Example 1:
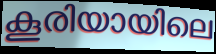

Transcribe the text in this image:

കൂരിയായിലെ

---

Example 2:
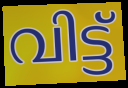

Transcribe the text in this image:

വിട്ട്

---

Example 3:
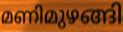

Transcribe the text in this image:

മണിമുഴങ്ങി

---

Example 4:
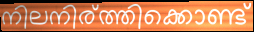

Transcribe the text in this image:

നിലനിര്ത്തിക്കൊണ്ട്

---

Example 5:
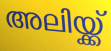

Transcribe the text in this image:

അലിയ്ക്ക്